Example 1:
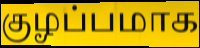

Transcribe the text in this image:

குழப்பமாக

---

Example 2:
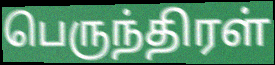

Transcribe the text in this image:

பெருந்திரள்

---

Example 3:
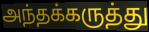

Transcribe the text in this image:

அந்தக்கருத்து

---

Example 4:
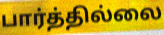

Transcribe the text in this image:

பார்த்தில்லை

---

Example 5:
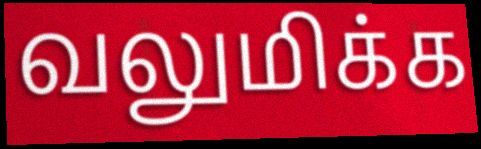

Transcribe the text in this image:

வலுமிக்க